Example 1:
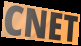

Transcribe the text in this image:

CNET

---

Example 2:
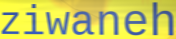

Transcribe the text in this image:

ziwaneh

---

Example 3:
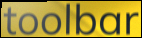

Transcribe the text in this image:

toolbar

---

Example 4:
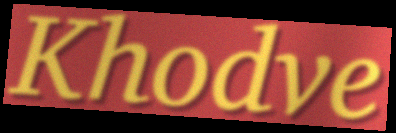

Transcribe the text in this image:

Khodve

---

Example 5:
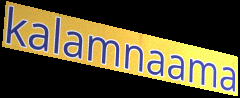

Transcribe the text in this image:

kalamnaama